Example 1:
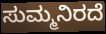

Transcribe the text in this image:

ಸುಮ್ಮನಿರದೆ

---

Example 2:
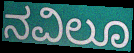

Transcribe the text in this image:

ನವಿಲೂ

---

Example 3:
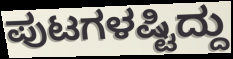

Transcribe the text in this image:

ಪುಟಗಳಷ್ಟಿದ್ದು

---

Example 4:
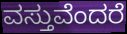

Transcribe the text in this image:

ವಸ್ತುವೆಂದರೆ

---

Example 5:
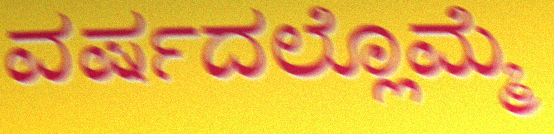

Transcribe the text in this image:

ವರ್ಷದಲ್ಲೊಮ್ಮೆ